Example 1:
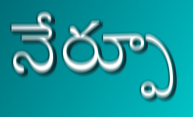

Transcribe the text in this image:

నేర్పూ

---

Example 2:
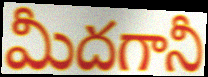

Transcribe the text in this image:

మీదగానీ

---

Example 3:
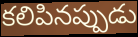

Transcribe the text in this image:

కలిపినప్పుడు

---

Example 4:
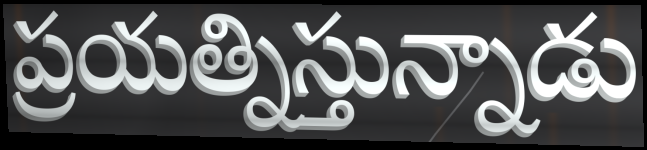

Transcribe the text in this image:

ప్రయత్నిస్తున్నాడు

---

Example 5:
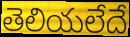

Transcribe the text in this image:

తెలియలేదే